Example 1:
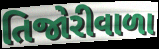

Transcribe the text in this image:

તિજોરીવાળા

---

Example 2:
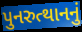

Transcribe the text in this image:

પુનરુત્થાનનું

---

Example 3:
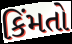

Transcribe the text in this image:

કિંમતો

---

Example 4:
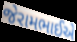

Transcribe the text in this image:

જેરામભાઈએ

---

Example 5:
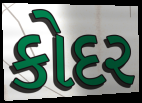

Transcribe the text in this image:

કોદર